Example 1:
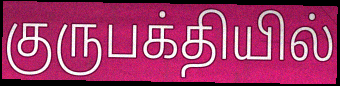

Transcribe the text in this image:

குருபக்தியில்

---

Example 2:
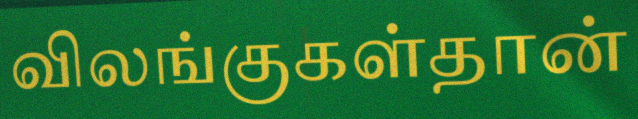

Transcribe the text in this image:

விலங்குகள்தான்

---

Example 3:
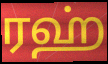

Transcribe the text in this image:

ரஹ்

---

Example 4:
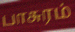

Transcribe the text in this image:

பாசுரம்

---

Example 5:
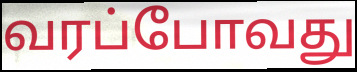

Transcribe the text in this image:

வரப்போவது